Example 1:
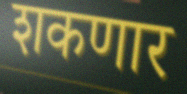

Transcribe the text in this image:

शकणार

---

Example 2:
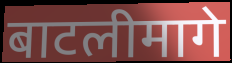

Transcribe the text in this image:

बाटलीमागे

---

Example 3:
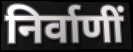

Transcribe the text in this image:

निर्वाणीं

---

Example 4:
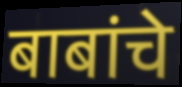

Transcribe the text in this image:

बाबांचे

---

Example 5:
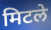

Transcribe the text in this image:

मिटले